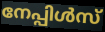
നേപ്പിൾസ്